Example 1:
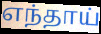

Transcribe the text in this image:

எந்தாய்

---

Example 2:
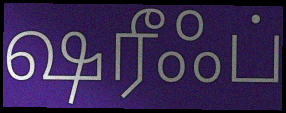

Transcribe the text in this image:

ஷரீஃப்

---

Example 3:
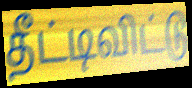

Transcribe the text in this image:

தீட்டிவிட்டு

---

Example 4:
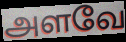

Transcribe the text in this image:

அளவே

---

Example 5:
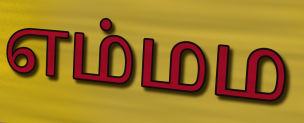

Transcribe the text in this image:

எம்மம